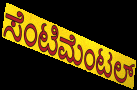
ಸೆಂಟಿಮೆಂಟಲ್